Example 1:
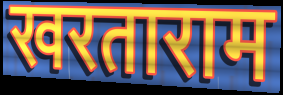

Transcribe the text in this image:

खरताराम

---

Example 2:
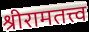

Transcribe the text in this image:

श्रीरामतत्त्व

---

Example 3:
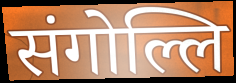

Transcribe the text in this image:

संगोल्लि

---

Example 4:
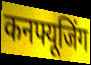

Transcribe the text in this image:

कनफ्यूजिंग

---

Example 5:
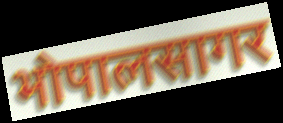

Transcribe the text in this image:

भोपालसागर